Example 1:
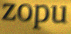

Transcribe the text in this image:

zopu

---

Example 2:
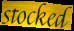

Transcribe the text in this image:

stocked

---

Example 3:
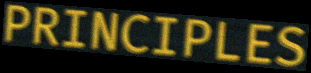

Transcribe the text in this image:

PRINCIPLES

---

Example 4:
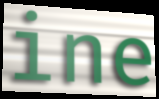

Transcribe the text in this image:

ine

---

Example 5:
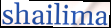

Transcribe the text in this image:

shailima